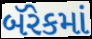
બૅરેકમાં